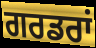
ਗਰਡਰਾਂ